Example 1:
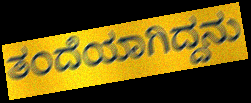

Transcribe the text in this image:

ತಂದೆಯಾಗಿದ್ದನು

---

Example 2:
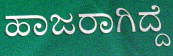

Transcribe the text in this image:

ಹಾಜರಾಗಿದ್ದೆ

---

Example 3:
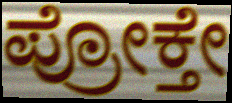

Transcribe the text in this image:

ಪ್ರೋಕ್ತೇ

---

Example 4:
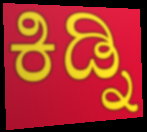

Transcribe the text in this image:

ಕಿಡ್ನಿ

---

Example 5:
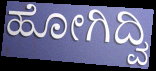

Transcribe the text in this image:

ಹೋಗಿದ್ವಿ